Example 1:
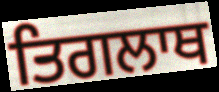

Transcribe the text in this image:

ਤਿਗਲਾਥ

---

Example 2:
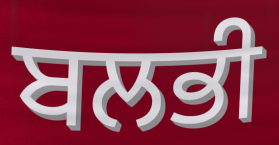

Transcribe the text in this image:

ਬਲਭੀ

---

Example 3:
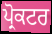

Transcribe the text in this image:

ਪ੍ਰੋਕਟਰ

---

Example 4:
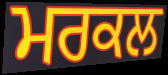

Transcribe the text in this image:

ਮਰਕਲ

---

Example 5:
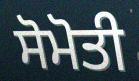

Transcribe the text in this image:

ਸੋਮੋਤੀ